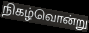
நிகழ்வொன்று